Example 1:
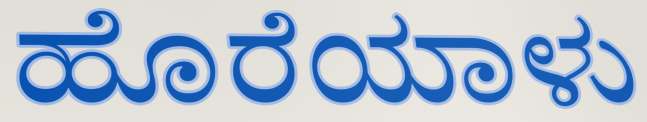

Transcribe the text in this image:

ಹೊರೆಯಾಳು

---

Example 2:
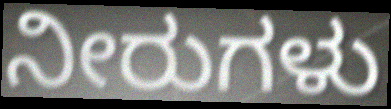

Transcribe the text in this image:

ನೀರುಗಳು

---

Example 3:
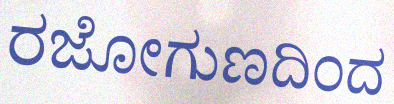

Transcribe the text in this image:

ರಜೋಗುಣದಿಂದ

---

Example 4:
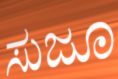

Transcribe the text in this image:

ಸುಜೂ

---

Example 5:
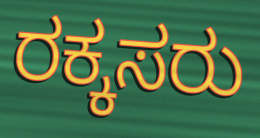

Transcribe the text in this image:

ರಕ್ಕಸರು